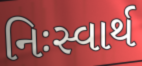
નિઃસ્વાર્થ